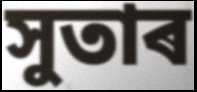
সুতাৰ